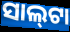
ସାଲ୍‌ଟା